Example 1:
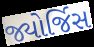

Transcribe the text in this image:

જ્યોર્જિસ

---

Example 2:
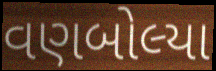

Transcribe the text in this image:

વણબોલ્યા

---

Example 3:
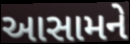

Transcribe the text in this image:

આસામને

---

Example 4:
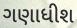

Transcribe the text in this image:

ગણાધીશ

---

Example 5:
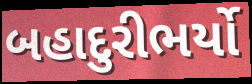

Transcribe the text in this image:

બહાદુરીભર્યો